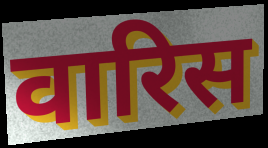
वारिस